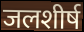
जलशीर्ष